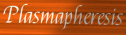
Plasmapheresis